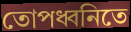
তোপধ্বনিতে